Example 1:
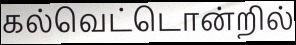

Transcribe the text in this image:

கல்வெட்டொன்றில்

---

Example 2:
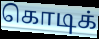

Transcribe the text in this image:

கொடிக்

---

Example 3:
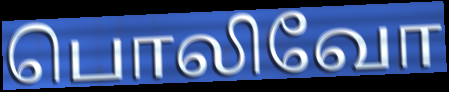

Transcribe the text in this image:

பொலிவோ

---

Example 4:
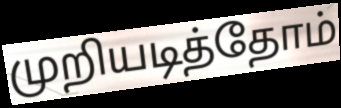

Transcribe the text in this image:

முறியடித்தோம்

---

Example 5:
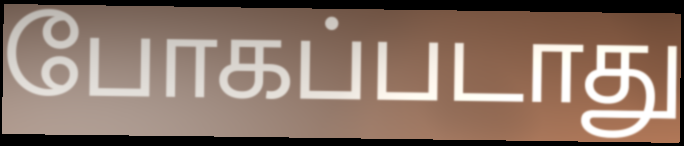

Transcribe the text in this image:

போகப்படாது